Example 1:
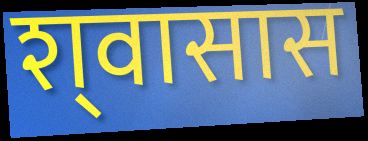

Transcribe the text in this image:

श्वासास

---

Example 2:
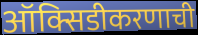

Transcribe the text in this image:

ऑक्सिडीकरणाची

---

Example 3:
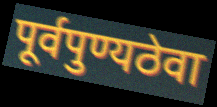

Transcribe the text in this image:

पूर्वपुण्यठेवा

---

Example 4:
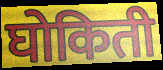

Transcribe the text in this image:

घोकिती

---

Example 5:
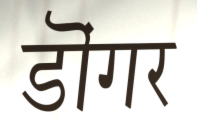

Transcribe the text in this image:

डॊंगर